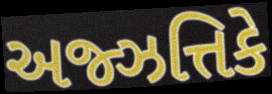
અજ્ઝત્તિકે